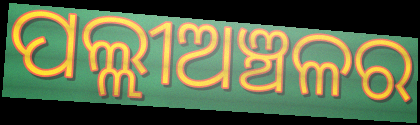
ପଲ୍ଲୀଅଞ୍ଚଳର